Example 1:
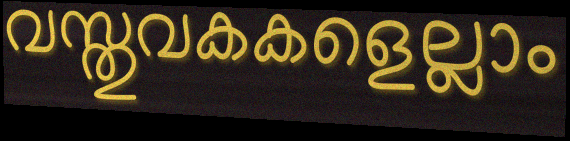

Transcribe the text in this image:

വസ്തുവകകളെല്ലാം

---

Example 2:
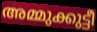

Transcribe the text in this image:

അമ്മുക്കുട്ടീ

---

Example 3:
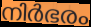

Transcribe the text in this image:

നിർഭരം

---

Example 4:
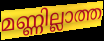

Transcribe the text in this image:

മണ്ണില്ലാത്ത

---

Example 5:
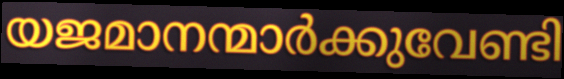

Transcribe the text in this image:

യജമാനന്മാർക്കുവേണ്ടി